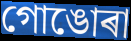
গোঙোৰা